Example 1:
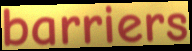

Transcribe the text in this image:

barriers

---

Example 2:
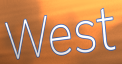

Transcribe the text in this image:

West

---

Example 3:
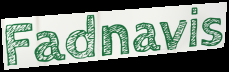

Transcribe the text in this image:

Fadnavis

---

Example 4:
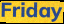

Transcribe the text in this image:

Friday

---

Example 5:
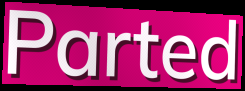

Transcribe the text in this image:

Parted